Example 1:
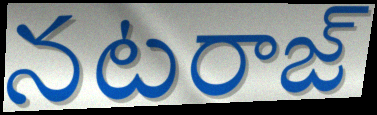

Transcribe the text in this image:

నటరాజ్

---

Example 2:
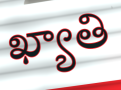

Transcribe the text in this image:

ఖ్యాతి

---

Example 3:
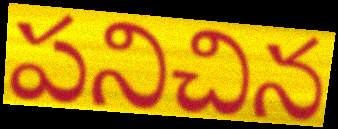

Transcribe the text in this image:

పనిచిన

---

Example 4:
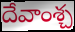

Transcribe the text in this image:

దేవాంశ్చ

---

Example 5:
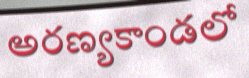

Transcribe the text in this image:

అరణ్యకాండలో